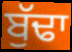
ਬੁੱਢਾ